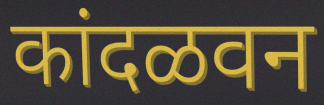
कांदळवन